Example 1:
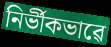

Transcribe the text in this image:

নিৰ্ভীকভাৱে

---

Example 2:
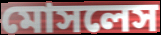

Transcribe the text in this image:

মোসলেস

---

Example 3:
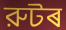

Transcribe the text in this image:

ৰুটৰ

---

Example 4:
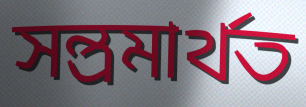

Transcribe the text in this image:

সন্ত্ৰমাৰ্থত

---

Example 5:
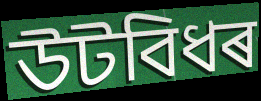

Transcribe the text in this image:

উটবিধৰ